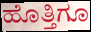
ಹೊತ್ತಿಗೂ